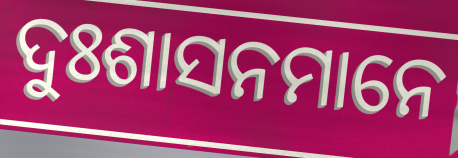
ଦୁଃଶାସନମାନେ